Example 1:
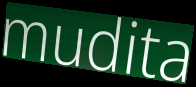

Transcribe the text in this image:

mudita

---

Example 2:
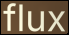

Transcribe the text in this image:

flux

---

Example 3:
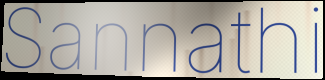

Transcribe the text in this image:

Sannathi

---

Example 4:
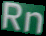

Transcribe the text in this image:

Rn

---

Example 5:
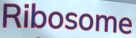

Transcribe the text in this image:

Ribosome